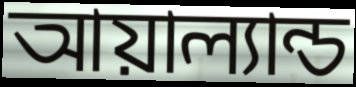
আয়াল্যান্ড